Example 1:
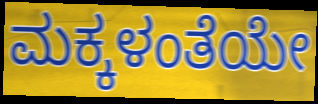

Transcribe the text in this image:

ಮಕ್ಕಳಂತೆಯೇ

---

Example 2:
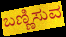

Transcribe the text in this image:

ಬಣ್ಣಿಸುವ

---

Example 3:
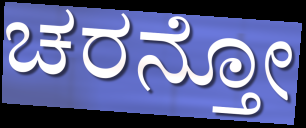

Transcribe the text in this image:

ಚರನ್ತೋ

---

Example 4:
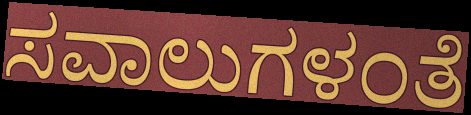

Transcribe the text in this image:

ಸವಾಲುಗಳಂತೆ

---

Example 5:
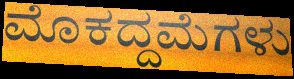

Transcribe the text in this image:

ಮೊಕದ್ದಮೆಗಳು